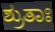
ಶ್ರುತಾಃ